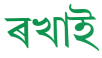
ৰখাই